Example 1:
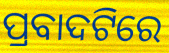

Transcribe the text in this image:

ପ୍ରବାଦଟିରେ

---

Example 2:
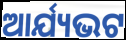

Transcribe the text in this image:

ଆର୍ଯ୍ୟଭଟ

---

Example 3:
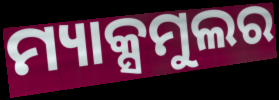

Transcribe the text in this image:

ମ୍ୟାକ୍ସମୁଲର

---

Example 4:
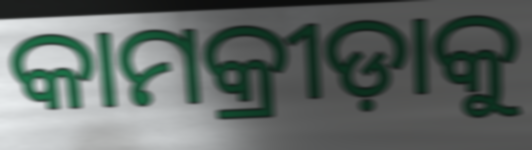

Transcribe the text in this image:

କାମକ୍ରୀଡ଼ାକୁ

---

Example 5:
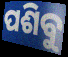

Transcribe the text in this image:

ପଶିବୁ